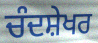
ਚੰਦਸ਼ੇਖਰ